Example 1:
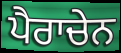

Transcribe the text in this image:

ਪੈਰਾਚੇਨ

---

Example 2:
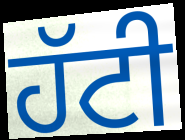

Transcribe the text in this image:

ਹੱਟੀ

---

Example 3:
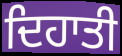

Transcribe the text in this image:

ਦਿਹਾਤੀ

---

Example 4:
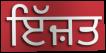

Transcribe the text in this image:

ਇੱਜ਼ਤ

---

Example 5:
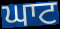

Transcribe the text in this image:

ਘਾਟ